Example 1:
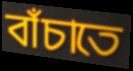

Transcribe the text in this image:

বাঁচাতে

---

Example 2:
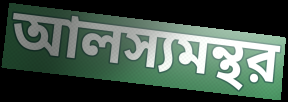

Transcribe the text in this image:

আলস্যমন্থর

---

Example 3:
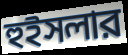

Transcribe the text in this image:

হুইসলার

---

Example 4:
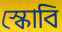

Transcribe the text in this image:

স্কোবি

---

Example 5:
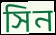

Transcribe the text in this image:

সিন